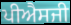
ਪੀਐਸਜੀ